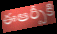
ఈఆర్సీకి